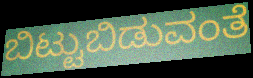
ಬಿಟ್ಟುಬಿಡುವಂತೆ